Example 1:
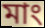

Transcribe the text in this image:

মাং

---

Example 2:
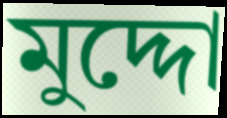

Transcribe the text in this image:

মুদ্দো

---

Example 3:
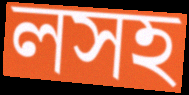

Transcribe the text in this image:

লসহ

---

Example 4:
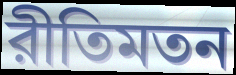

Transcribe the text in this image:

রীতিমতন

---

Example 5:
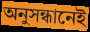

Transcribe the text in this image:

অনুসন্ধানেই